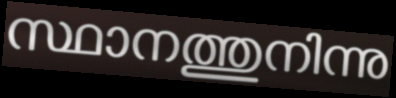
സ്ഥാനത്തുനിന്നു